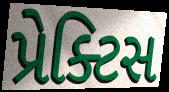
પ્રેક્ટિસ